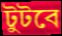
টুটবে